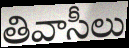
తివాసీలు